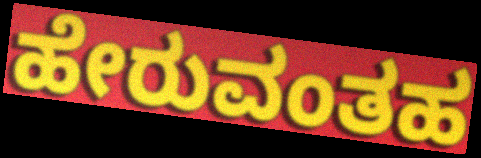
ಹೇರುವಂತಹ